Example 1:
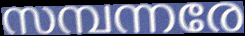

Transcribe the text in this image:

സമ്പന്നരേ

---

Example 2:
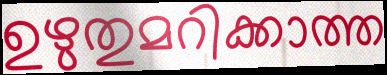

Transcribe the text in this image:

ഉഴുതുമറിക്കാത്ത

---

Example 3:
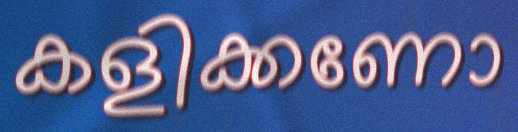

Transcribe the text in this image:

കളിക്കണോ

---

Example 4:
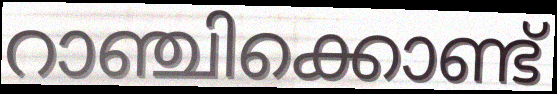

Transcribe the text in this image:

റാഞ്ചിക്കൊണ്ട്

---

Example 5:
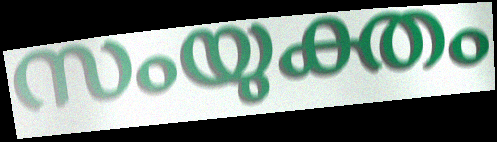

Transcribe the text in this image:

സംയുക്തം